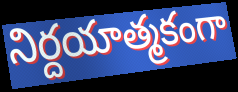
నిర్దయాత్మకంగా